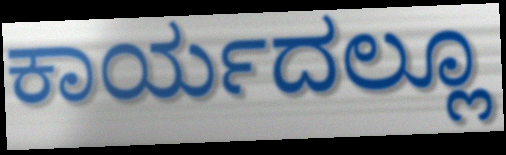
ಕಾರ್ಯದಲ್ಲೂ